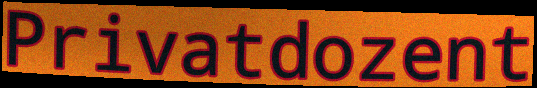
Privatdozent